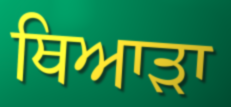
ਥਿਆੜਾ